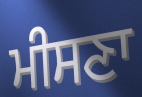
ਮੀਸਣਾ